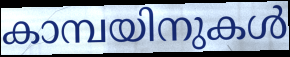
കാമ്പയിനുകൾ